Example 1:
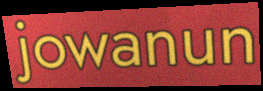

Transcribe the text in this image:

jowanun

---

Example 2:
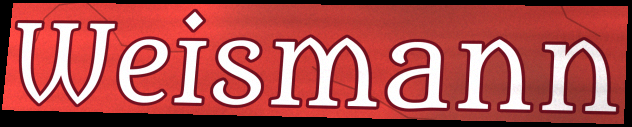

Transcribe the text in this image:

Weismann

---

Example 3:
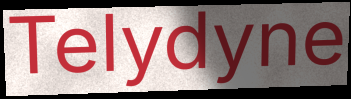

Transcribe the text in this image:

Telydyne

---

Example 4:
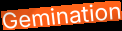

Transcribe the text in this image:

Gemination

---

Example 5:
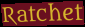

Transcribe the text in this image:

Ratchet